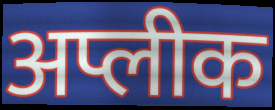
अप्लीक